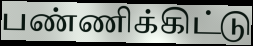
பண்ணிக்கிட்டு